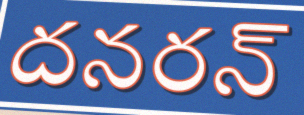
దనరన్